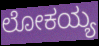
ಲೋಕಯ್ಯ